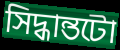
সিদ্ধান্তটো